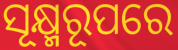
ସୂକ୍ଷ୍ମରୂପରେ